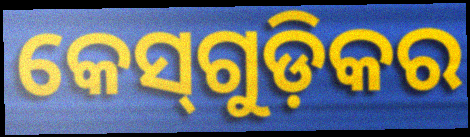
କେସ୍‌ଗୁଡ଼ିକର